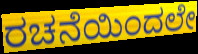
ರಚನೆಯಿಂದಲೇ